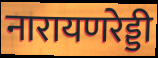
नारायणरेड्डी